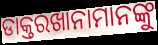
ଡାକ୍ତରଖାନାମାନଙ୍କୁ